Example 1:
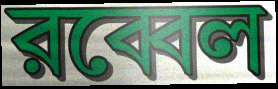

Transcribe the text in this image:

রব্বেল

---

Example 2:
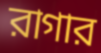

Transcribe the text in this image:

রাগার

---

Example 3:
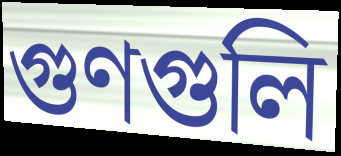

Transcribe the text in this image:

গুণগুলি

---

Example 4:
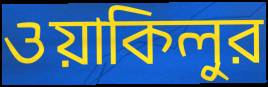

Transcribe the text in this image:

ওয়াকিলুর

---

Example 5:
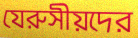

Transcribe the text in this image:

যেরুসীয়দের